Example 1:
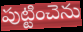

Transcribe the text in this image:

పుట్టించెను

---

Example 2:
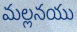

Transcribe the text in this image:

మల్లనయు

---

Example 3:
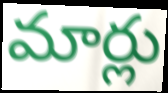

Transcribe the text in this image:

మార్లు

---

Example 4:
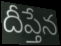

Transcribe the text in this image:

దీప్తేన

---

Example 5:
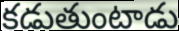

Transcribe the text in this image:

కడుతుంటాడు